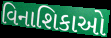
વિનાશિકાઓ